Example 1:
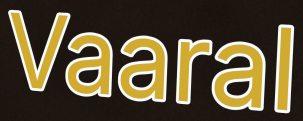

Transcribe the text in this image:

Vaaral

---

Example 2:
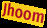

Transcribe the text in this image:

Jhoom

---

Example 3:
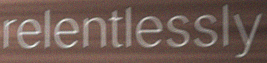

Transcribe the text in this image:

relentlessly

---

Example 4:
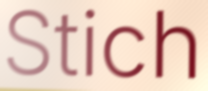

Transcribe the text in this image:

Stich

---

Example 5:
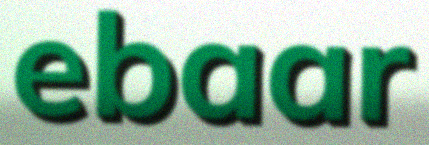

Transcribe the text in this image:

ebaar